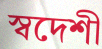
স্বদেশী